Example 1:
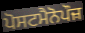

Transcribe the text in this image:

ਪੋਸਟਮੈਨੋਪੌਜ਼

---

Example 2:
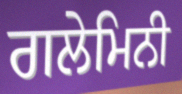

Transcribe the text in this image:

ਗਲੇਮਿਨੀ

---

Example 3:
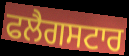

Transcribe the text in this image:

ਫਲੈਗਸਟਾਰ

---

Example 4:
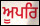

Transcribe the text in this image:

ਅੂਪਰਿ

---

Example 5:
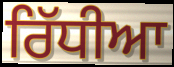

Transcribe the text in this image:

ਰਿੱਧੀਆ